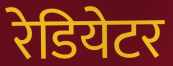
रेडियेटर